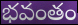
భవంతం